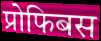
प्रोफिबस